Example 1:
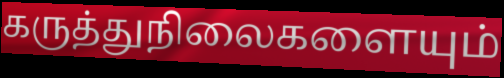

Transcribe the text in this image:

கருத்துநிலைகளையும்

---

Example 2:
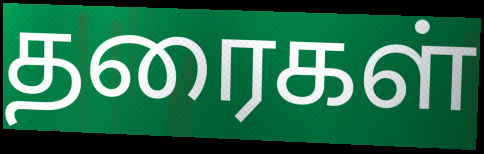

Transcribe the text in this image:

தரைகள்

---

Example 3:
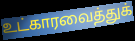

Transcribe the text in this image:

உட்காரவைத்துக்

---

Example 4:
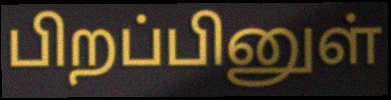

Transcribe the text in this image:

பிறப்பினுள்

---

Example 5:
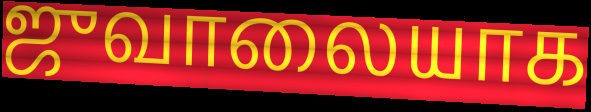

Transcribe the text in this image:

ஜுவாலையாக